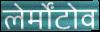
लेर्मोंटोव